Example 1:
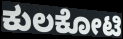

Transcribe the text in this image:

ಕುಲಕೋಟಿ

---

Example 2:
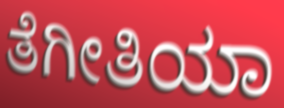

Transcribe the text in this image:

ತೆಗೀತಿಯಾ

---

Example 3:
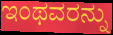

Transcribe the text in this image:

ಇಂಥವರನ್ನು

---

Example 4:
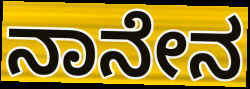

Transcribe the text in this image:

ನಾನೇನ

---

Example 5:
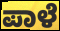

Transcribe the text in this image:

ಪಾಳೆ